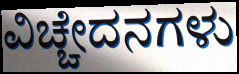
ವಿಚ್ಚೇದನಗಳು